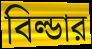
বিল্ডার